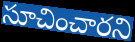
సూచించారని